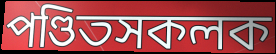
পণ্ডিতসকলক